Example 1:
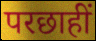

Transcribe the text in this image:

परछाहीं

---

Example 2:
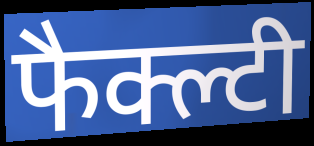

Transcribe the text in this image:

फैक्ल्टी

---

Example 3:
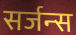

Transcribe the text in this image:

सर्जन्स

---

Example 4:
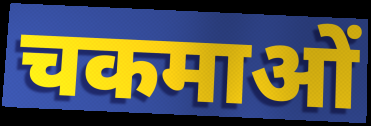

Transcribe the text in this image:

चकमाओं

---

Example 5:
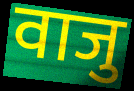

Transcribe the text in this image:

वाजु